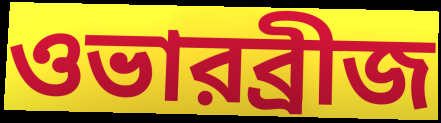
ওভারব্রীজ